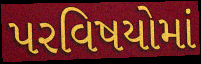
પરવિષયોમાં